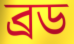
ব্রড